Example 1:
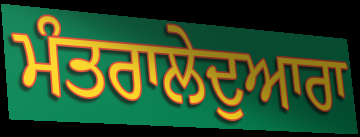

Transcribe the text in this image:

ਮੰਤਰਾਲੇਦੁਆਰਾ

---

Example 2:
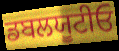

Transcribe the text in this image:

ਡਬਲਯੂਟੀਓ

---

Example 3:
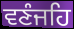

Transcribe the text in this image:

ਵਣੰਜਹਿ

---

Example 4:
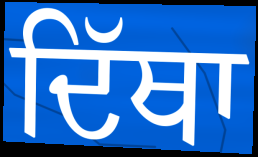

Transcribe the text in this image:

ਦਿੱਥਾ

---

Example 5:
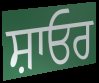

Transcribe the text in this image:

ਸ਼ਾਓਰ